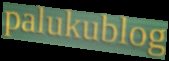
palukublog